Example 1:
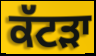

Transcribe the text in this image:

ਕੱਟੜਾ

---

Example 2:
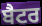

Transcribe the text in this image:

ਬੈਟਰ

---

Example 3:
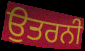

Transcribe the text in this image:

ਉਤਰਨੀ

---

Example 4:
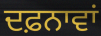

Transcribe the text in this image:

ਦਫ਼ਨਾਵਾਂ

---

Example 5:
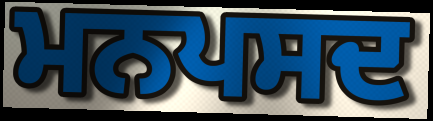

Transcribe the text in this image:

ਮਨਪਸਦ